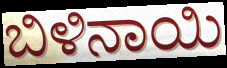
ಬಿಳಿನಾಯಿ